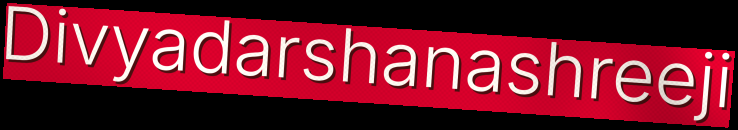
Divyadarshanashreeji